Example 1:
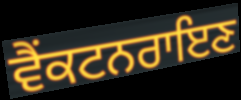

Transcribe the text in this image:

ਵੈਂਕਟਨਰਾਇਣ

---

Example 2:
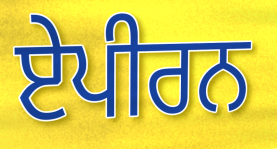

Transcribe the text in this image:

ਏਪੀਰਨ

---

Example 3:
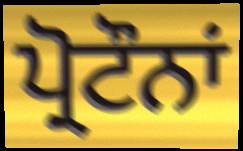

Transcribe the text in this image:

ਪ੍ਰੋਟੌਨਾਂ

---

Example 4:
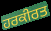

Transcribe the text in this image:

ਹਰਕੀਰਤ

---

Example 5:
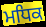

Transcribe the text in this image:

ਮਧਿਕ